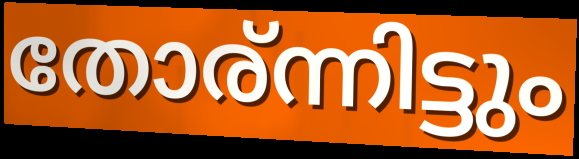
തോര്ന്നിട്ടും